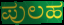
ಪುಲಹ